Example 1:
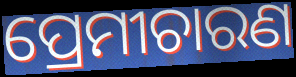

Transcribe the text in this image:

ପ୍ରେମୀଚାରଣ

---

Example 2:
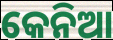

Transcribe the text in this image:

କେନିଆ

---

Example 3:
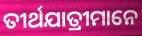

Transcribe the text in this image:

ତୀର୍ଥଯାତ୍ରୀମାନେ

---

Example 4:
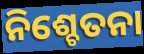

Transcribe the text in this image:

ନିଶ୍ଚେତନା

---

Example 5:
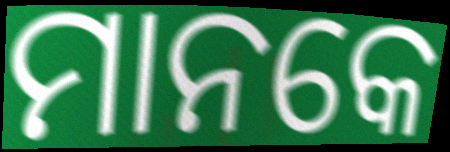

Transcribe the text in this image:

ମାନକେ